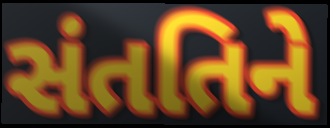
સંતતિને